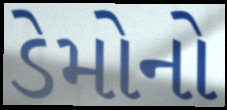
ડેમોનો